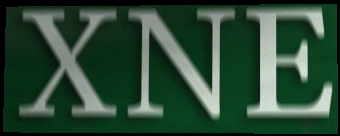
XNE